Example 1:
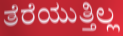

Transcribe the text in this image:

ತೆರೆಯುತ್ತಿಲ್ಲ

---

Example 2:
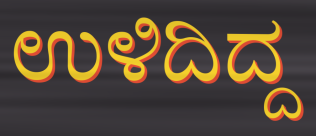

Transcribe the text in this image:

ಉಳಿದಿದ್ದ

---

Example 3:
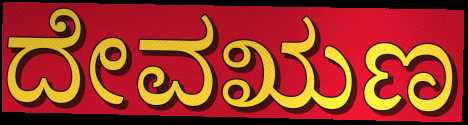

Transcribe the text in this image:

ದೇವಋಣ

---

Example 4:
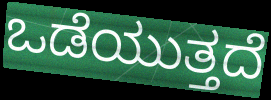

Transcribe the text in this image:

ಒಡೆಯುತ್ತದೆ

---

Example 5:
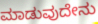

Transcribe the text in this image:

ಮಾಡುವುದೇನು